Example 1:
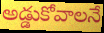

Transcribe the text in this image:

అడ్డుకోవాలనే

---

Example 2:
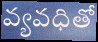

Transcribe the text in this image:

వ్యవధితో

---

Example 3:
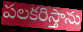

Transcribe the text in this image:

పలకరిస్తాను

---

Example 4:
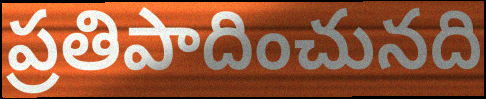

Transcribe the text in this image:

ప్రతిపాదించునది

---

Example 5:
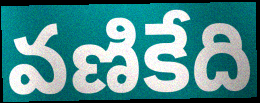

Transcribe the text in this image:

వణికేది